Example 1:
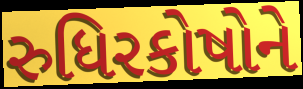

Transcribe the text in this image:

રુધિરકોષોને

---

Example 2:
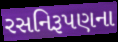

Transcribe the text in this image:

રસનિરૂપણના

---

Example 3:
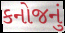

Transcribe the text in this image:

કનોજનું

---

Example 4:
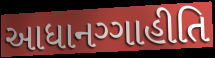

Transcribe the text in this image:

આધાનગ્ગાહીતિ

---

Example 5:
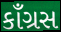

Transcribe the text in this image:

કાઁગ્રસ